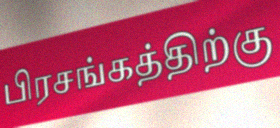
பிரசங்கத்திற்கு